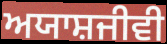
ਅਯਾਸ਼ਜੀਵੀ